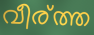
വീര്ത്ത